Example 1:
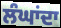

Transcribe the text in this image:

ਲੰਘਾਂਦਾ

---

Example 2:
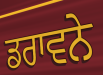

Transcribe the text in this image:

ਡਰਾਵਨੇ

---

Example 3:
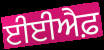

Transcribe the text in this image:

ਈਈਐਫ਼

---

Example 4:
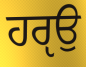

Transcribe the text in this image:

ਹਰੵਉ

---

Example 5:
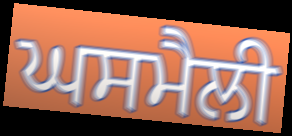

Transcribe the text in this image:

ਘਸਮੈਲੀ